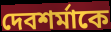
দেবশর্মাকে